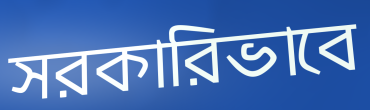
সরকারিভাবে